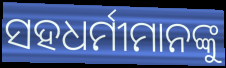
ସହଧର୍ମୀମାନଙ୍କୁ